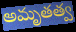
అమృతత్వ